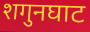
शगुनघाट